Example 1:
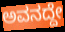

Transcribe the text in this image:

ಅವನದ್ದೇ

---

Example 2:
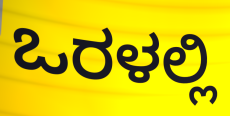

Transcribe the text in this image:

ಒರಳಲ್ಲಿ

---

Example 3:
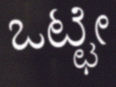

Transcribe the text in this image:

ಒಟ್ಟೇ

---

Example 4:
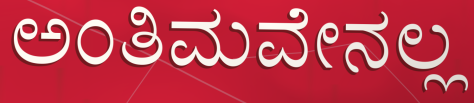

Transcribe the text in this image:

ಅಂತಿಮವೇನಲ್ಲ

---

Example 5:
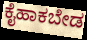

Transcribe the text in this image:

ಕೈಹಾಕಬೇಡ